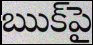
ఋక్‌పై